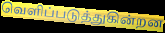
வெளிப்படுத்துகின்றன